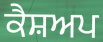
ਕੈਸ਼ਅਪ